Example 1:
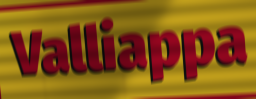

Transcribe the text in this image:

Valliappa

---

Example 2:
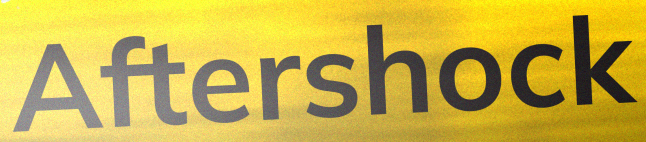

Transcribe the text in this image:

Aftershock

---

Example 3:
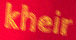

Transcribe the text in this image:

kheir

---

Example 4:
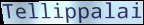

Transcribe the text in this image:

Tellippalai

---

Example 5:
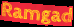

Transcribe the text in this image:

Ramgad